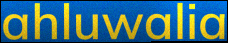
ahluwalia